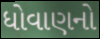
ધોવાણનો